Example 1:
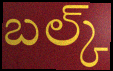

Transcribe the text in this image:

బల్క్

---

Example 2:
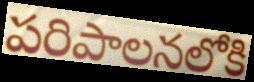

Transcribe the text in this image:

పరిపాలనలోకి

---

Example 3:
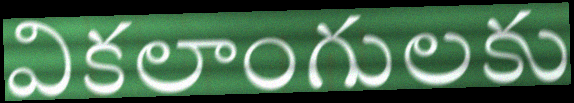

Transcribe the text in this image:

వికలాంగులకు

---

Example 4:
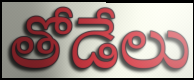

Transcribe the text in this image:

తోడేలు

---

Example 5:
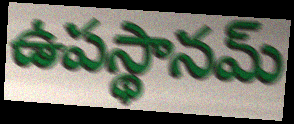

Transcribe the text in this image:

ఉపస్థానమ్